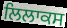
ਲਿਲਾਕਸ